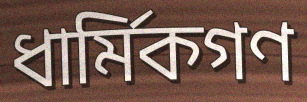
ধার্মিকগণ